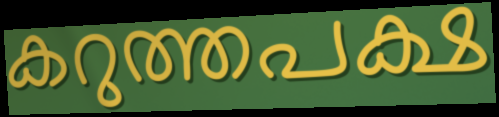
കറുത്തപക്ഷ